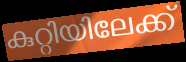
കുറ്റിയിലേക്ക്